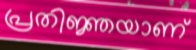
പ്രതിജ്ഞയാണ്